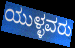
ಯುಳ್ಳವರು